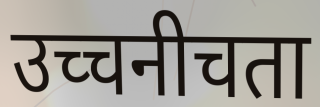
उच्चनीचता